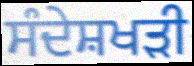
ਸੰਦੇਸ਼ਖੜੀ